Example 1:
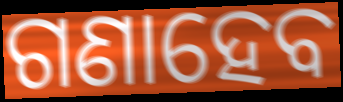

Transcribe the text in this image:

ଗଣାହେବ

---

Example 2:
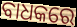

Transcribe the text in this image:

ବାଧକରେ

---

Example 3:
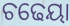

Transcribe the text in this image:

ଚଢେୟା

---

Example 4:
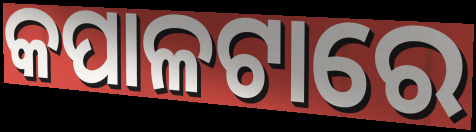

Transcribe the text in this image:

କପାଳଟାରେ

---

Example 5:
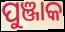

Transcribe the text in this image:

ପୁଞ୍ଜାକ